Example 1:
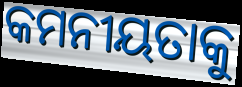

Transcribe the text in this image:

କମନୀୟତାକୁ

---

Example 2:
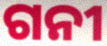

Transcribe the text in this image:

ଗନୀ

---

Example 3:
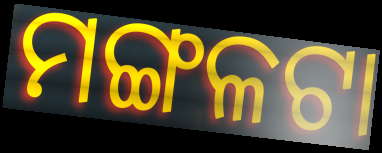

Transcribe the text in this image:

ମଙ୍ଗଳଟା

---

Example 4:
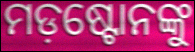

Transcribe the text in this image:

ମଡ଼ଷ୍ଟୋନଙ୍କୁ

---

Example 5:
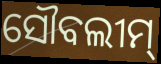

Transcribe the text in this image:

ସୌବଲୀମ୍